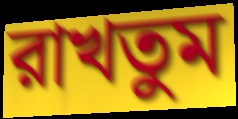
রাখতুম